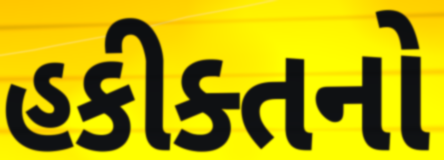
હકીક્તનો